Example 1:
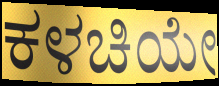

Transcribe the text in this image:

ಕಳಚಿಯೇ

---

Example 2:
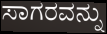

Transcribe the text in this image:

ಸಾಗರವನ್ನು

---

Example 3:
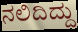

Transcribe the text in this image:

ನಲಿದಿದ್ದು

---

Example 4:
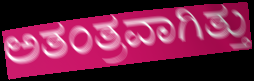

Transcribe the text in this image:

ಅತಂತ್ರವಾಗಿತ್ತು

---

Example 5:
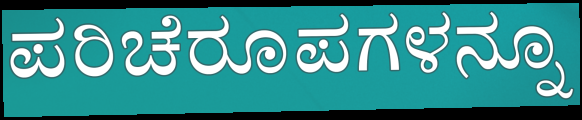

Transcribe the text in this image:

ಪರಿಚೆರೂಪಗಳನ್ನೂ